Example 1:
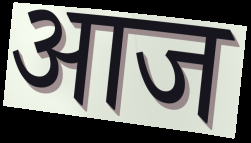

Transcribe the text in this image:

आज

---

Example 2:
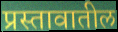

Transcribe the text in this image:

प्रस्तावातील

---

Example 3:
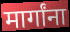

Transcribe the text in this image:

मार्गांना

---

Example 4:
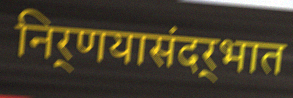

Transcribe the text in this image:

निर्णयासंदर्भात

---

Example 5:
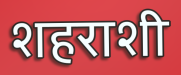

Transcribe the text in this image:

शहराशी